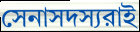
সেনাসদস্যরাই